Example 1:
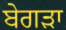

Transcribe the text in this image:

ਬੇਗੜਾ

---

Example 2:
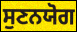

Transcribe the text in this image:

ਸੁਣਨਯੋਗ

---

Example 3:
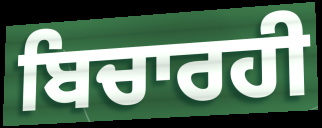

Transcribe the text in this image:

ਬਿਚਾਰਹੀ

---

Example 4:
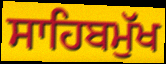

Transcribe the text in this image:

ਸਾਹਿਬਮੁੱਖ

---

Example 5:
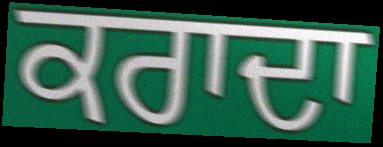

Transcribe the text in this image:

ਕਰਾਦਾ